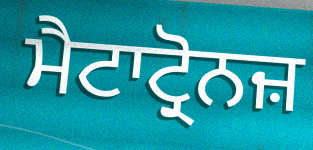
ਮੈਟਾਟ੍ਰੋਨਜ਼